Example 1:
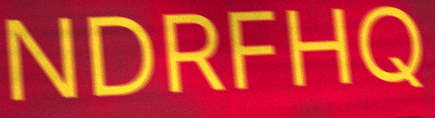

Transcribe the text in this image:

NDRFHQ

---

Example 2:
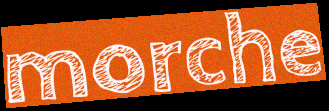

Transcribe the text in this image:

morche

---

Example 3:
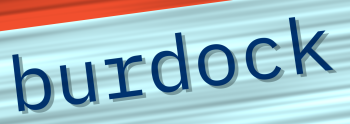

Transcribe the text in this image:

burdock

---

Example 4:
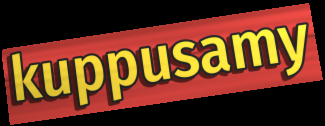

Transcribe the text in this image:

kuppusamy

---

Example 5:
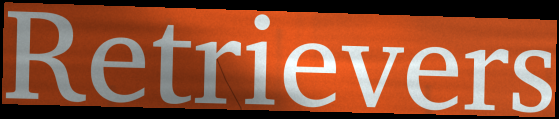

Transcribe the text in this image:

Retrievers